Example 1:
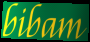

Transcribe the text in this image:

bibam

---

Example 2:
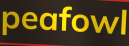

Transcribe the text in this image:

peafowl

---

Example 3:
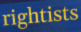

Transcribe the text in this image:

rightists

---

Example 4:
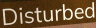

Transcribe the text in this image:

Disturbed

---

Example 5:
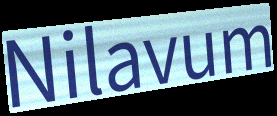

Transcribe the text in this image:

Nilavum